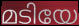
മടിയേ